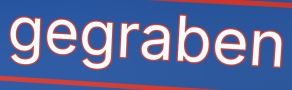
gegraben